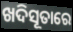
ଖଦିସୂତାରେ